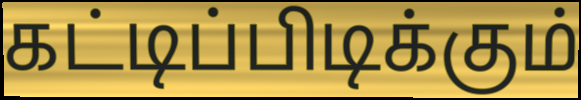
கட்டிப்பிடிக்கும்